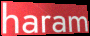
haram